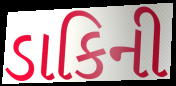
ડાકિની